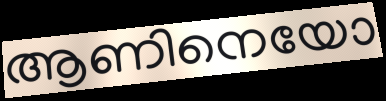
ആണിനെയോ